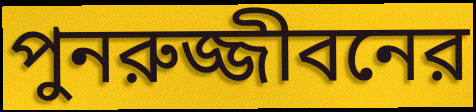
পুনরুজ্জীবনের